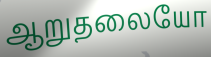
ஆறுதலையோ